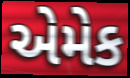
એમેક